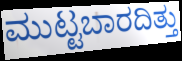
ಮುಟ್ಟಬಾರದಿತ್ತು